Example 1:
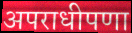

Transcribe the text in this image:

अपराधीपणा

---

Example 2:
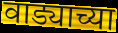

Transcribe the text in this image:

वाड्याच्या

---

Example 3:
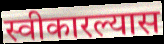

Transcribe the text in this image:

स्वीकारल्यास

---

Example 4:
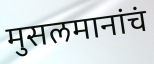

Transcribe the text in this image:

मुसलमानांचं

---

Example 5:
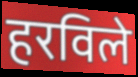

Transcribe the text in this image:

हरविले